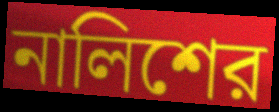
নালিশের